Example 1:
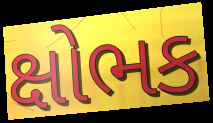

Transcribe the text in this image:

ક્ષોભક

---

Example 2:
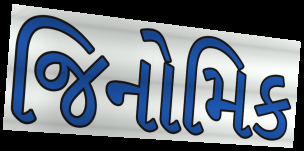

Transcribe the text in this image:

જિનોમિક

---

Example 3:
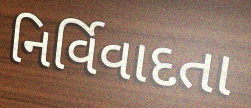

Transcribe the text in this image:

નિર્વિવાદતા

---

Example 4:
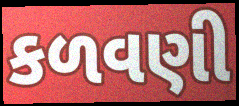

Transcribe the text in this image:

કળવણી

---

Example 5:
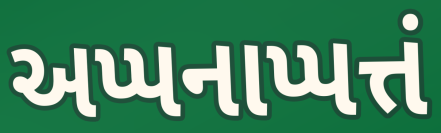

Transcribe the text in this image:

અપ્પનાપ્પત્તં